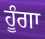
ਹੂੰਗਾ